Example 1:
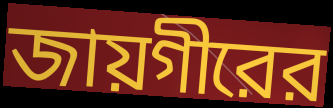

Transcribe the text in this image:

জায়গীরের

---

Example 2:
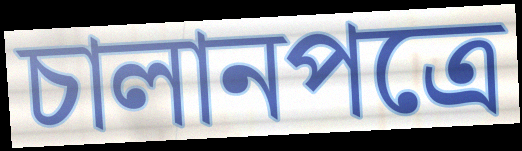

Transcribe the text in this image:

চালানপত্রে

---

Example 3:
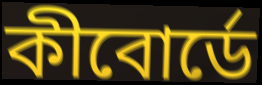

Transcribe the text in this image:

কীবোর্ডে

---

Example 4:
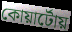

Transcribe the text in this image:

কোয়ার্টোয়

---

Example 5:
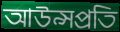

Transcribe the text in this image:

আউন্সপ্রতি